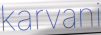
karvani